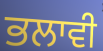
ਭਲਾਵੀ